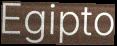
Egipto